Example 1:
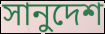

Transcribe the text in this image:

সানুদেশ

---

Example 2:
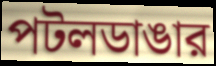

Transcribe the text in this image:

পটলডাঙার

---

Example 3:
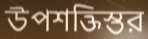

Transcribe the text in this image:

উপশক্তিস্তর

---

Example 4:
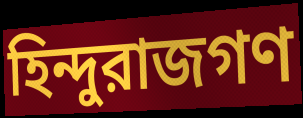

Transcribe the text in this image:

হিন্দুরাজগণ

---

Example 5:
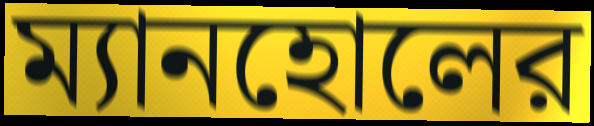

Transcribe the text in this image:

ম্যানহোলের